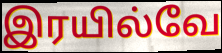
இரயில்வே